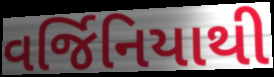
વર્જિનિયાથી